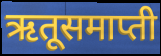
ऋतूसमाप्ती